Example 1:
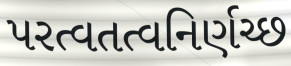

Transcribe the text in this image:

પરત્વતત્વનિર્ણચ્છ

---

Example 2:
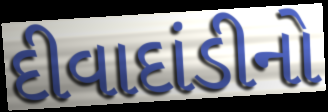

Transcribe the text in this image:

દીવાદાંડીનો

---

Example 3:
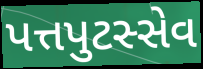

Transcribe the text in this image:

પત્તપુટસ્સેવ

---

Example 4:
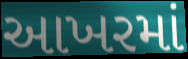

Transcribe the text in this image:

આખરમાં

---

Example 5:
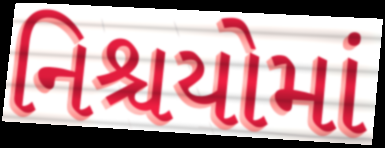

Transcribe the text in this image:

નિશ્ચયોમાં